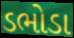
ડભોડા